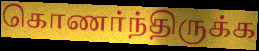
கொணர்ந்திருக்க